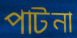
পাটনা